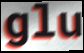
glu